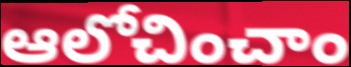
ఆలోచించాం